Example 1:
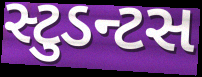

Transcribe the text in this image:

સ્ટુડન્ટસ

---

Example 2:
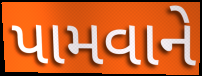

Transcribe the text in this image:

પામવાને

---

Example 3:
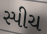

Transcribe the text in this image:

સ્પીચ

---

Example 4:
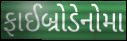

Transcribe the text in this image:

ફાઈબ્રોડેનોમા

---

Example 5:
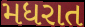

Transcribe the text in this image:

મધરાત